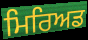
ਮਿਰਿਅਡ